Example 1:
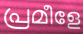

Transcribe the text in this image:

പ്രമീളേ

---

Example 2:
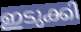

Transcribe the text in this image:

ഇടുക്കി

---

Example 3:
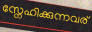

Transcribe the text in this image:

സ്നേഹിക്കുന്നവര്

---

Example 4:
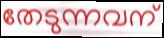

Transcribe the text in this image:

തേടുന്നവന്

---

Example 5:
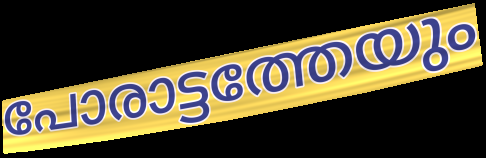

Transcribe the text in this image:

പോരാട്ടത്തേയും